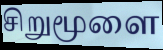
சிறுமூளை